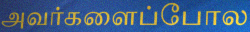
அவர்களைப்போல